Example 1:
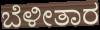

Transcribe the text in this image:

ಬೆಳೀತಾರ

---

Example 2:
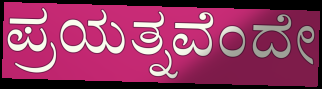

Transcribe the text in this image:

ಪ್ರಯತ್ನವೆಂದೇ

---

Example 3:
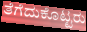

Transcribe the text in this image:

ತೆಗೆದುಕೊಟ್ಟರು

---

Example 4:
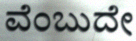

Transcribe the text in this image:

ವೆಂಬುದೇ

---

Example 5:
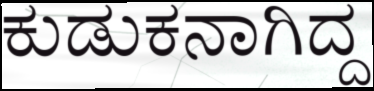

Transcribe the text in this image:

ಕುಡುಕನಾಗಿದ್ದ